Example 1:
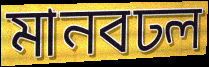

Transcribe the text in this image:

মানবঢল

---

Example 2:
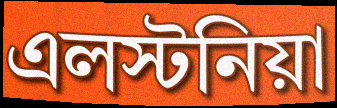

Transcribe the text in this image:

এলস্টনিয়া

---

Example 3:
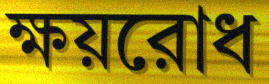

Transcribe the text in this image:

ক্ষয়রোধ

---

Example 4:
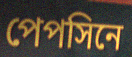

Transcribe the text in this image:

পেপসিনে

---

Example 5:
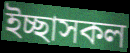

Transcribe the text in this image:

ইচ্ছাসকল